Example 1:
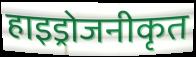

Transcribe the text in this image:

हाइड्रोजनीकृत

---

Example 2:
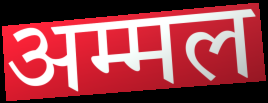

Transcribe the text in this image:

अम्मल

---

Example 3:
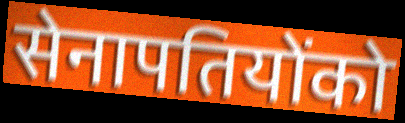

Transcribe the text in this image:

सेनापतियोंको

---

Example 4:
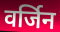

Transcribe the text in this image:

वर्जिन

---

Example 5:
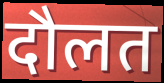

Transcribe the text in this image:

दौलत